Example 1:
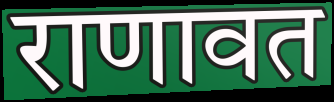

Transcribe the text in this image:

राणावत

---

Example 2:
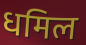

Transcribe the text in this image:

धमिल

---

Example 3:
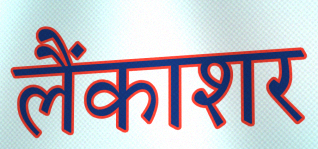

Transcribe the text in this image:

लैंकाशर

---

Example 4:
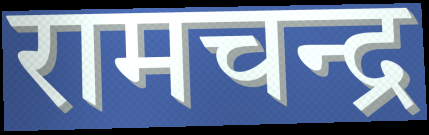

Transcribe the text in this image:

रामचन्‍द्र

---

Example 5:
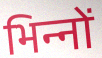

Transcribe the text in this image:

भिन्नों